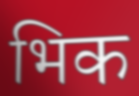
भिक